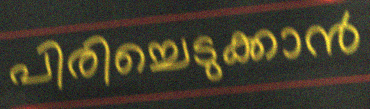
പിരിച്ചെടുക്കാൻ